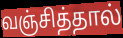
வஞ்சித்தால்